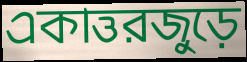
একাত্তরজুড়ে